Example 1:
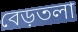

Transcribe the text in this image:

বেড়তলা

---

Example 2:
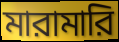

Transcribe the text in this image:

মারামারি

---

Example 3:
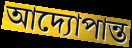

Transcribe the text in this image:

আদ্যোপান্ত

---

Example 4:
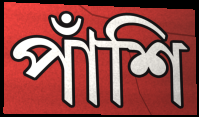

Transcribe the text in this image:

পাঁশি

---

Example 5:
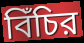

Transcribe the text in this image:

বিঁচির